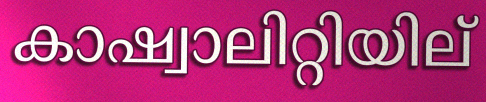
കാഷ്വാലിറ്റിയില്